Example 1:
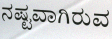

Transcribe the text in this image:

ನಷ್ಟವಾಗಿರುವ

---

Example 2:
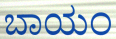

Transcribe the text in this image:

ಬಾಯಂ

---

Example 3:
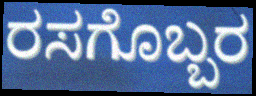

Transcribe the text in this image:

ರಸಗೊಬ್ಬರ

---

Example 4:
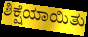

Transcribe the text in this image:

ಶಿಕ್ಷೆಯಾಯಿತು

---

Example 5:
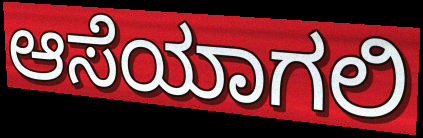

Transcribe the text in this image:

ಆಸೆಯಾಗಲಿ